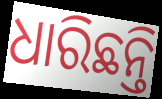
ଧାରିଛନ୍ତି